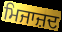
ਮਿਜਾਜ਼ਦ